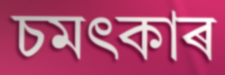
চমৎকাৰ